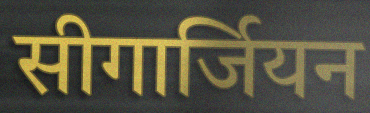
सीगार्जियन